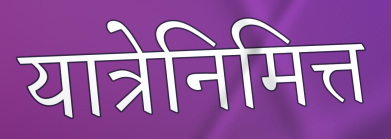
यात्रेनिमित्त